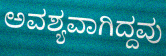
ಅವಶ್ಯವಾಗಿದ್ದವು